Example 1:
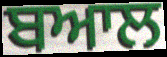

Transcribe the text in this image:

ਬਆਲ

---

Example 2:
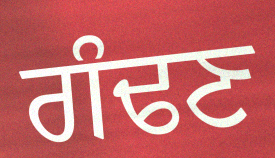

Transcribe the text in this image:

ਗੰਢਣ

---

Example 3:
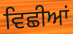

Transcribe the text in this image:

ਵਿਛੀਆਂ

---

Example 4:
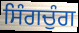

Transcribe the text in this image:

ਸਿੰਗਚੁੰਗ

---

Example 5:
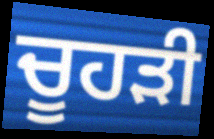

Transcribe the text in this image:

ਚੂਹੜੀ